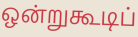
ஒன்றுகூடிப்